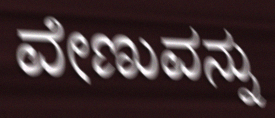
ವೇಣುವನ್ನು